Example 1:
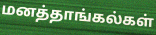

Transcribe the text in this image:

மனத்தாங்கல்கள்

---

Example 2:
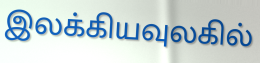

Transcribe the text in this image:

இலக்கியவுலகில்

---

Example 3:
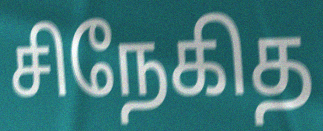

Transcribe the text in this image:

சிநேகித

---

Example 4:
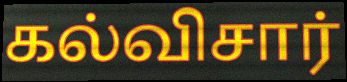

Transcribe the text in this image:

கல்விசார்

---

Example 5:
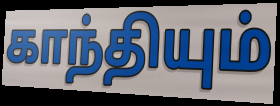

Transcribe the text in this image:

காந்தியும்